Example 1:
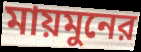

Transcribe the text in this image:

মায়মুনের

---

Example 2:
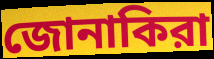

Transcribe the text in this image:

জোনাকিরা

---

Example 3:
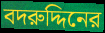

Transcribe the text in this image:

বদরুদ্দিনের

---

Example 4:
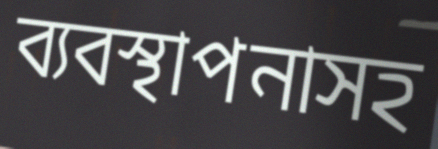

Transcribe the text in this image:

ব্যবস্থাপনাসহ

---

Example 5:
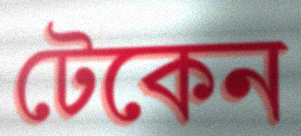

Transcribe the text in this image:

টেকেন